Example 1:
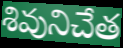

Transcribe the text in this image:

శివునిచేత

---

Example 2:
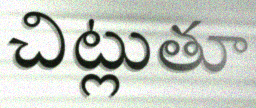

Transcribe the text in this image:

చిట్లుతూ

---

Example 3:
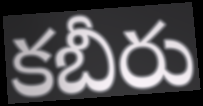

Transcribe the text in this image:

కబీరు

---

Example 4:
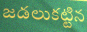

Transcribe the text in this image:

జడలుకట్టిన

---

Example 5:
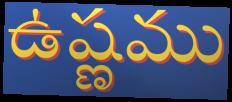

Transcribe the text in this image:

ఉష్ణము